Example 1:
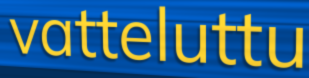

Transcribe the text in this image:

vatteluttu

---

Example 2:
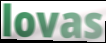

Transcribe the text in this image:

lovas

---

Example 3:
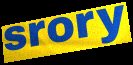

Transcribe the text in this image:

srory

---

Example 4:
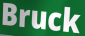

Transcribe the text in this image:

Bruck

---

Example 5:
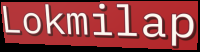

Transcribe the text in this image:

Lokmilap